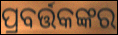
ପ୍ରବର୍ତ୍ତକଙ୍କର